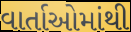
વાર્તાઓમાંથી